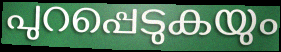
പുറപ്പെടുകയും